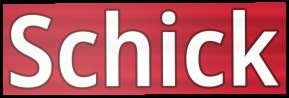
Schick